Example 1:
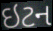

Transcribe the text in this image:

ઇટન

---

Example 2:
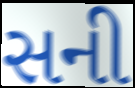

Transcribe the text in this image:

સની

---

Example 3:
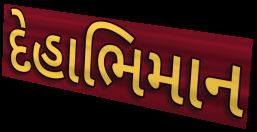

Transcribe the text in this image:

દેહાભિમાન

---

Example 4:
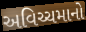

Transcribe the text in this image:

અવિચ્ચમાનો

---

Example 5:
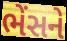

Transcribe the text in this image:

ભેંસને